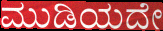
ಮುಡಿಯದೇ